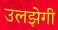
उलझेगी